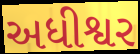
અધીશ્વર